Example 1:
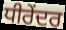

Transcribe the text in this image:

ਧੀਰੇਂਦਰ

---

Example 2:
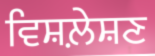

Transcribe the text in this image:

ਵਿਸ਼ਲ਼ੇਸ਼ਣ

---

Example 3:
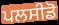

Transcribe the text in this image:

ਪਲਸੀਡੋ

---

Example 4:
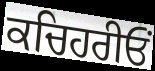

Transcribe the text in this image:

ਕਚਿਹਰੀਓਂ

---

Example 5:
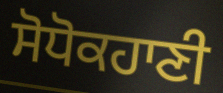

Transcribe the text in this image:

ਸੋਧੋਕਹਾਣੀ